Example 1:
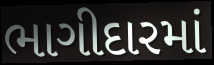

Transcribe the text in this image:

ભાગીદારમાં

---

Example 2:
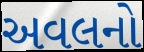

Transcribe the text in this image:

અવલનો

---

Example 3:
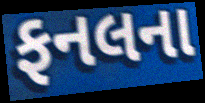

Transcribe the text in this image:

ફનલના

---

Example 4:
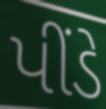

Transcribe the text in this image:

પીંડે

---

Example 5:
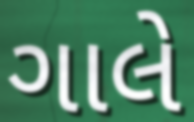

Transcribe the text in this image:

ગાલે